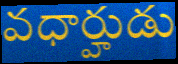
వధార్హుడు